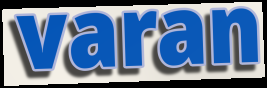
varan